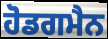
ਹੋਡਗਮੈਨ